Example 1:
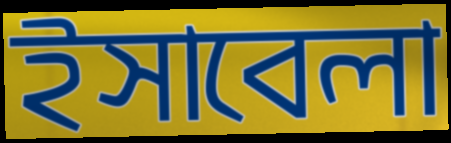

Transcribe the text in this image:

ইসাবেলা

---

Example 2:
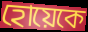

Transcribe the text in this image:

হোয়েকে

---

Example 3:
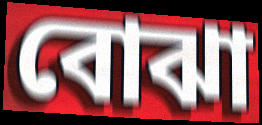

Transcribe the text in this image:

বোঝা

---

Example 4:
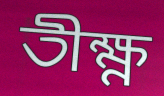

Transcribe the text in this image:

তীক্ষ্ণ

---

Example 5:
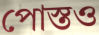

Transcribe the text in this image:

পোস্তও